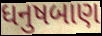
ધનુષબાણ